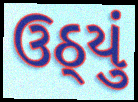
ઉઠ્યું